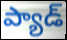
ప్యాడ్